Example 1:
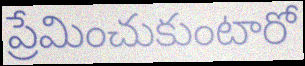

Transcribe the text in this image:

ప్రేమించుకుంటారో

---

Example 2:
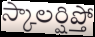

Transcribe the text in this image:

స్కాలర్షిప్తో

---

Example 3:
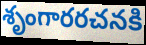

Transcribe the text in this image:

శృంగారరచనకి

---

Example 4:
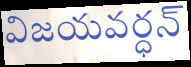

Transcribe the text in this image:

విజయవర్ధన్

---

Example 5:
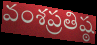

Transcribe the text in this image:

వంశప్రతిష్ఠ